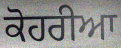
ਕੋਹਰੀਆ